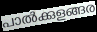
പാൽക്കുളങ്ങര